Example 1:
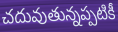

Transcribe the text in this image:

చదువుతున్నప్పటికీ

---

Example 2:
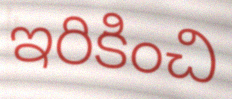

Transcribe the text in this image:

ఇరికించి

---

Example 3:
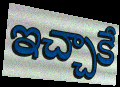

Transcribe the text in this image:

ఇచ్చాకే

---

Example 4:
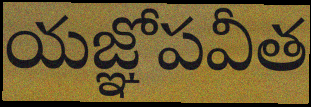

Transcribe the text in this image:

యజ్ఞోపవీత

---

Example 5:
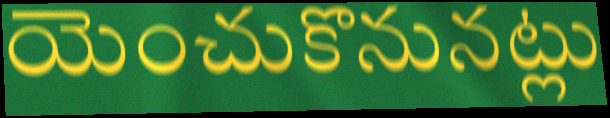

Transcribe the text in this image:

యెంచుకొనునట్లు